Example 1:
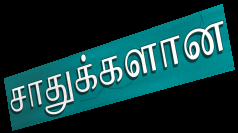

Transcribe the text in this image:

சாதுக்களான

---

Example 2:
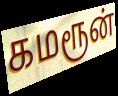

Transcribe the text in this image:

கமரூன்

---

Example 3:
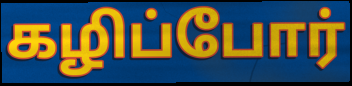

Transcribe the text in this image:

கழிப்போர்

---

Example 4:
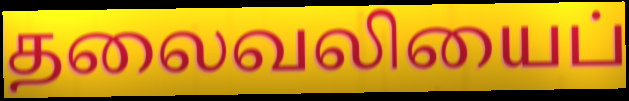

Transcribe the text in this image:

தலைவலியைப்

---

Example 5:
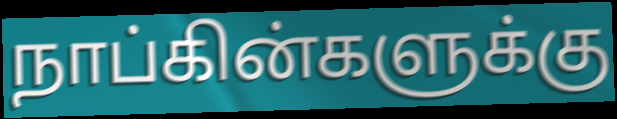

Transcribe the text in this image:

நாப்கின்களுக்கு